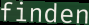
finden